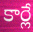
కార్లే